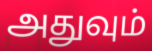
அதுவும்